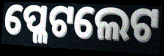
ପ୍ଳେଟଲେଟ